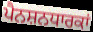
ਪੈਨਸ਼ਨਧਾਰਕਾਂ